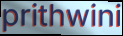
prithwini